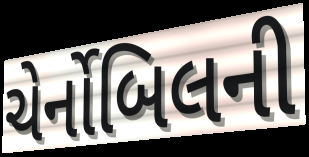
ચેર્નોબિલની